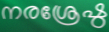
നരശ്രേഷ്ഠ